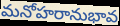
మనోహరానుభావ